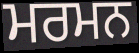
ਮਰਮਨ